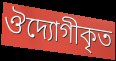
ঔদ্যোগীকৃত